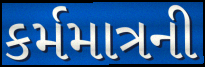
કર્મમાત્રની